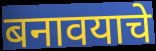
बनावयाचे